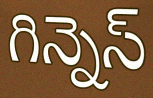
గిన్నెస్